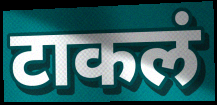
टाकलं